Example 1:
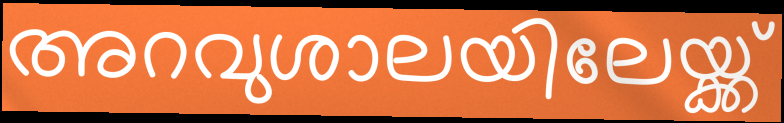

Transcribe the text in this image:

അറവുശാലയിലേയ്ക്ക്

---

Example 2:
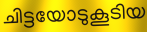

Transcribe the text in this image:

ചിട്ടയോടുകൂടിയ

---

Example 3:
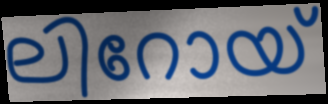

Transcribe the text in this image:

ലിറോയ്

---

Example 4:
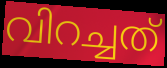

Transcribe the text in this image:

വിറച്ചത്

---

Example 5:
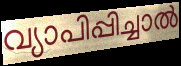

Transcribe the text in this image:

വ്യാപിപ്പിച്ചാൽ